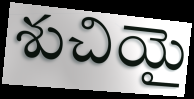
శుచియై